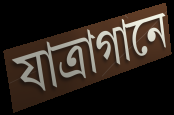
যাত্রাগানে